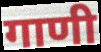
गाणी